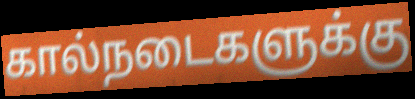
கால்நடைகளுக்கு